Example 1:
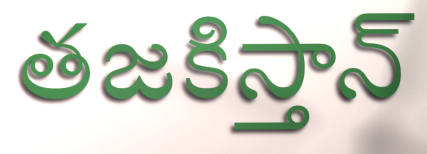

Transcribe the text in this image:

తజకిస్తాన్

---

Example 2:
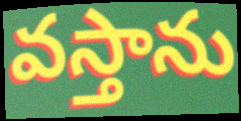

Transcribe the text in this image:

వస్తాను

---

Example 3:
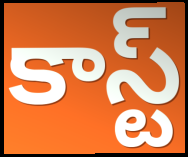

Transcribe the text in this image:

కాస్ట్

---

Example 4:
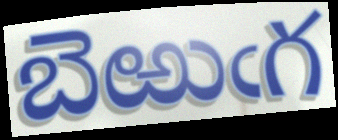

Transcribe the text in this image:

బెఱుఁగ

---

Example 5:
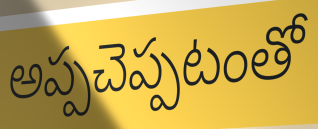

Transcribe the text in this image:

అప్పచెప్పటంతో